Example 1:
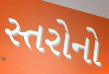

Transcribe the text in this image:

સ્તરોનો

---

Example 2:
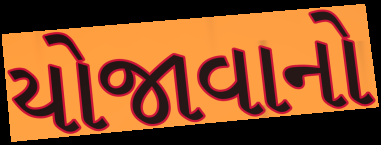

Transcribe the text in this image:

યોજાવાનો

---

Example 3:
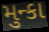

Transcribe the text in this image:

મુન્કા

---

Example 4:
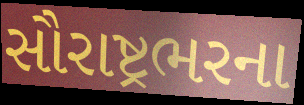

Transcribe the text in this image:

સૌરાષ્ટ્રભરના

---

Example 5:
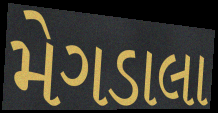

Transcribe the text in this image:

મેગડાલા